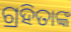
ଗ୍ରହିତାଙ୍କ